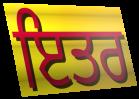
ਇਤਰ